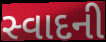
સ્વાદની